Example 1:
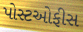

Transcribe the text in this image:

પોસ્ટઓફીસ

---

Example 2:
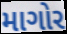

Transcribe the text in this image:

માગોર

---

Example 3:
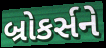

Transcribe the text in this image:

બ્રોકર્સને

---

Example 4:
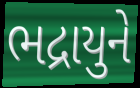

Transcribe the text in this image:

ભદ્રાયુને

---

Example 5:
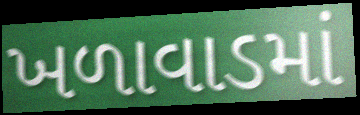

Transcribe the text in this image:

ખળાવાડમાં